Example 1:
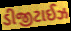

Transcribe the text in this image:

ડીજીટાઈઝ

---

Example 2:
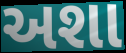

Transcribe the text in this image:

અશા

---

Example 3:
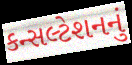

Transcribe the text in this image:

કન્સલ્ટેશનનું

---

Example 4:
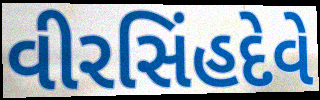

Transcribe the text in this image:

વીરસિંહદેવે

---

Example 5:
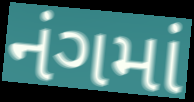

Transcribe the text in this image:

નંગમાં